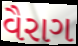
વૈરાગ